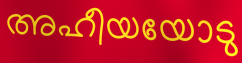
അഹീയയോടു